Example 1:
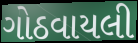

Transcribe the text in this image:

ગોઠવાયલી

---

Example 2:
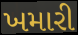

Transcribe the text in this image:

ખમારી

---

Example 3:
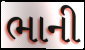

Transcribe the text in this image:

ભાની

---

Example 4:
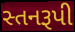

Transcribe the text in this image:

સ્તનરૂપી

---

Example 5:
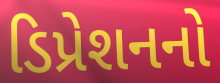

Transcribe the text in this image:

ડિપ્રેશનનો